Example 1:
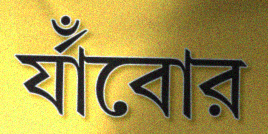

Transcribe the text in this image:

র্যাঁবোর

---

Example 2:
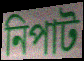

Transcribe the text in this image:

নিপাট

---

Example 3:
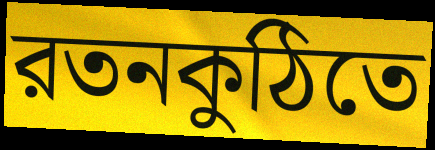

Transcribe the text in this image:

রতনকুঠিতে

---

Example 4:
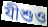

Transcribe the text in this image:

যীশুও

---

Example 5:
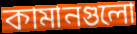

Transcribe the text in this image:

কামানগুলো